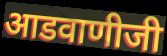
आडवाणीजी